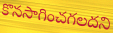
కొనసాగించగలదని